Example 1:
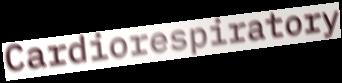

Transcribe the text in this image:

Cardiorespiratory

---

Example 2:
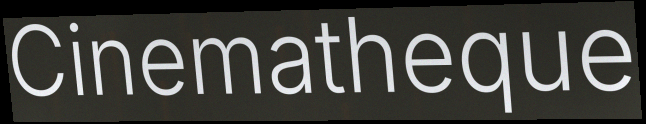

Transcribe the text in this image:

Cinematheque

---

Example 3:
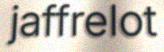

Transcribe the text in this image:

jaffrelot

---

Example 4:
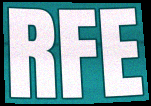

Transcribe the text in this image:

RFE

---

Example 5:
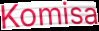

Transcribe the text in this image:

Komisa